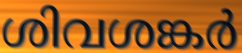
ശിവശങ്കർ